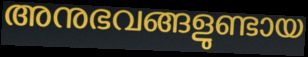
അനുഭവങ്ങളുണ്ടായ